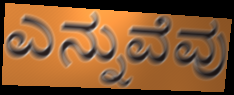
ಎನ್ನುವೆವು